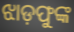
ଝାଡ଼ଫୁଙ୍କ